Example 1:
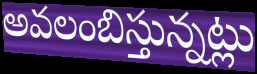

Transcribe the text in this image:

అవలంబిస్తున్నట్లు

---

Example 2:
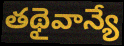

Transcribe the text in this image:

తథైవాన్యే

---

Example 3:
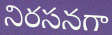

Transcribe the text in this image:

నిరసనగా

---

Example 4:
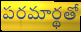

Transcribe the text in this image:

పరమార్థతో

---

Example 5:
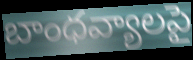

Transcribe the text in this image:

బాంధవ్యాలపై